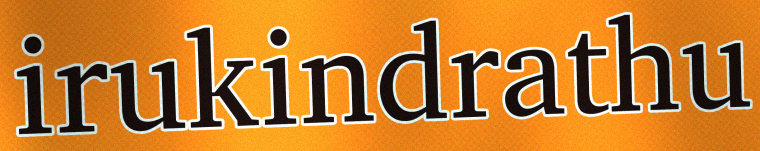
irukindrathu